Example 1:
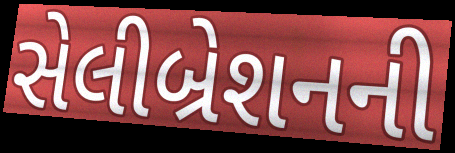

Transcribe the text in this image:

સેલીબ્રેશનની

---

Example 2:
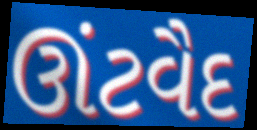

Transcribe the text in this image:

ઊંટવૈદ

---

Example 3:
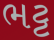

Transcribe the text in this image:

ભટ્ટ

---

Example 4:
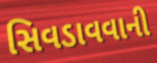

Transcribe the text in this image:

સિવડાવવાની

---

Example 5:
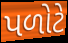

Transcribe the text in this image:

પળોટે